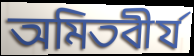
অমিতবীর্য